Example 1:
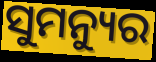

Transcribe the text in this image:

ସୁମନ୍ୟୁର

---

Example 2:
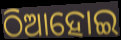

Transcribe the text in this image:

ଠିଆହୋଇ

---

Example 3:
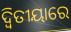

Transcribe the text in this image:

ଦ୍ୱିତୀୟାରେ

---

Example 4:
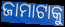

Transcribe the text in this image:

ଜାମାଟାକୁ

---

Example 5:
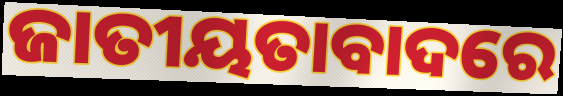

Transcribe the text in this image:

ଜାତୀୟତାବାଦରେ